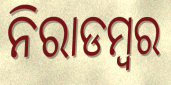
ନିରାଡମ୍ବର